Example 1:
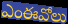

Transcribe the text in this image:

ఎంఈవోలు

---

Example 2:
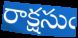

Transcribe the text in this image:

రాక్షసుఁ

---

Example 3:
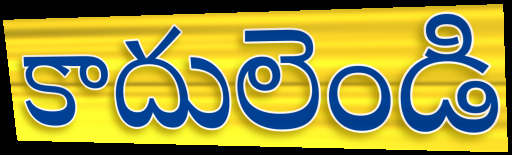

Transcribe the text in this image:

కాదులెండి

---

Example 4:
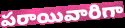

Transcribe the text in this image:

పరాయివారిగా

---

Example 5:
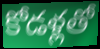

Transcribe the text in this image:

కోడళ్లతో